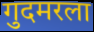
गुदमरला